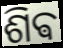
ଶିଵ